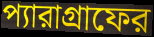
প্যারাগ্রাফের